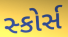
સ્કોર્સ